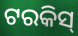
ଟରକିସ୍